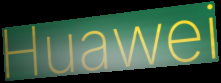
Huawei